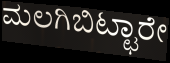
ಮಲಗಿಬಿಟ್ಟಾರೇ